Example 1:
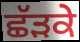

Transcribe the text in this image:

ਛੱੜਕੇ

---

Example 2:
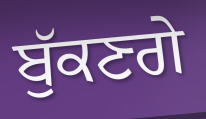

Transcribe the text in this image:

ਬੁੱਕਣਗੇ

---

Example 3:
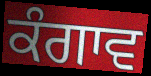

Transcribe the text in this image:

ਕੰਗਾਵ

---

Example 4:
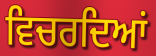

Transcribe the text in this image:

ਵਿਚਰਦਿਆਂ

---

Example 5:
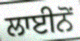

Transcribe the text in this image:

ਲਾਈਨੋਂ